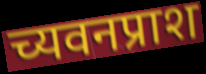
च्यवनप्राश